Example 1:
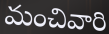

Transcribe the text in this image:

మంచివారి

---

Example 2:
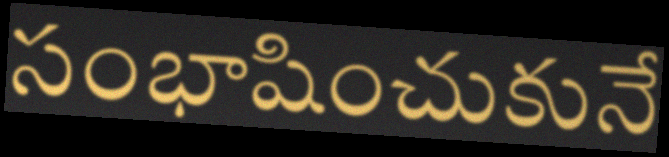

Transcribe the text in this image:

సంభాషించుకునే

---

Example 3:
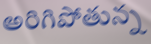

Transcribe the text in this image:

అరిగిపోతున్న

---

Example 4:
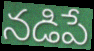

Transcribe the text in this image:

నడిపే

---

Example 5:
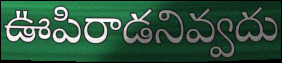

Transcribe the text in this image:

ఊపిరాడనివ్వదు